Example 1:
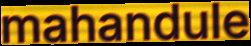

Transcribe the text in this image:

mahandule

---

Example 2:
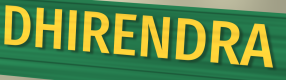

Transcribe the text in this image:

DHIRENDRA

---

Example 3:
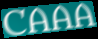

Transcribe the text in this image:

CAAA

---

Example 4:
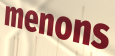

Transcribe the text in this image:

menons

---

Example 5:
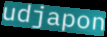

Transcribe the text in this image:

udjapon